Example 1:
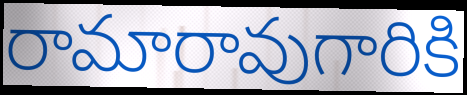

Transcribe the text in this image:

రామారావుగారికి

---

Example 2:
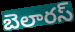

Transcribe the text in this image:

బెలారస్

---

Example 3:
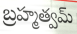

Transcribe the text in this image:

బ్రహ్మత్వమ్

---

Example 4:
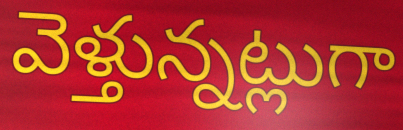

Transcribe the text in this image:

వెళ్తున్నట్లుగా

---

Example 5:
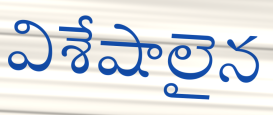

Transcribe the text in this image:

విశేషాలైన